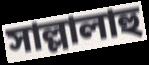
সাল্লালাহু